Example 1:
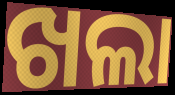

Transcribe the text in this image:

ଖଲା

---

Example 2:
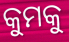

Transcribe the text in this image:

କୁମକୁ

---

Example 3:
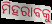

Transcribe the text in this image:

ମିହରାବକୁ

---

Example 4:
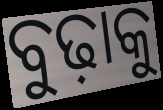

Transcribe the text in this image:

ବୁଢ଼ାକୁ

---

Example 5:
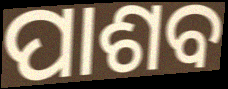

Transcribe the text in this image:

ପାଶବ